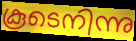
കൂടെനിന്നു